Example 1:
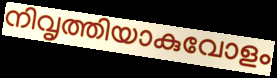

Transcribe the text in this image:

നിവൃത്തിയാകുവോളം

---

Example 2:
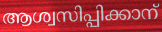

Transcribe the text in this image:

ആശ്വസിപ്പിക്കാന്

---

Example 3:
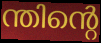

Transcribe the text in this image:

ന്തിന്റെ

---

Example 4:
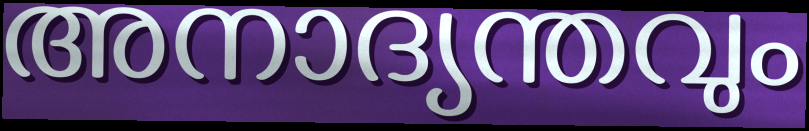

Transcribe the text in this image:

അനാദ്യന്തവും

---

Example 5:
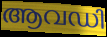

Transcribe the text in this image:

ആവഡി